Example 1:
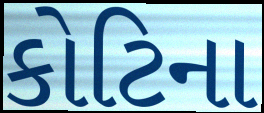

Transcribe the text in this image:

કોટિના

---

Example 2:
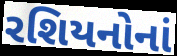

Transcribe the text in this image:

રશિયનોનાં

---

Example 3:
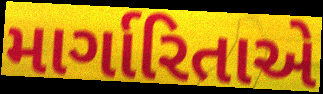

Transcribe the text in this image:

માર્ગારિતાએ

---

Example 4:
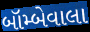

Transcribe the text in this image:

બૉમ્બેવાલા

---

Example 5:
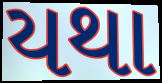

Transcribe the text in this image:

યથા